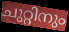
ചുറ്റിനും